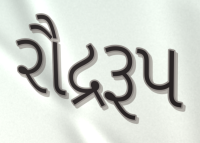
રૌદ્રરૂપ